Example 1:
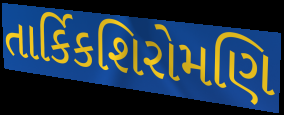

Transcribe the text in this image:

તાર્કિકશિરોમણિ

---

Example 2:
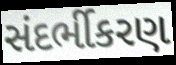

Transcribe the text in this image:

સંદર્ભીકરણ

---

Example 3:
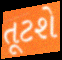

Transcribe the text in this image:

તૂટશે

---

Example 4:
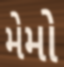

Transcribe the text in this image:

મેમો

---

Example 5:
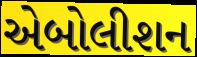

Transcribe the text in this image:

એબોલીશન